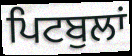
ਪਿਟਬੁਲਾਂ